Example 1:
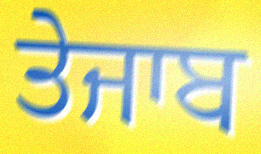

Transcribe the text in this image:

ਤੇਜਾਬ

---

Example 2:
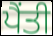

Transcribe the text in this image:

ਪੈਂਤੀ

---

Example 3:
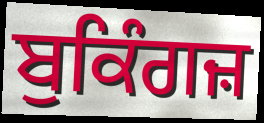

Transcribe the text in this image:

ਬੁਕਿੰਗਜ਼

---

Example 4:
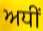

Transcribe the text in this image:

ਅਧੀਂ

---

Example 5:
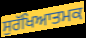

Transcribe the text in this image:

ਸੁਰੱਖਿਆਤਮਕ